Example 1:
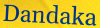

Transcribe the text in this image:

Dandaka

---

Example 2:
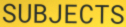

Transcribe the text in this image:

SUBJECTS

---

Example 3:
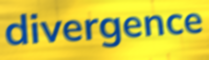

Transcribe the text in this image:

divergence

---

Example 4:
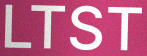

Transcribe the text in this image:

LTST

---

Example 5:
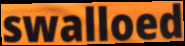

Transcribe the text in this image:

swalloed